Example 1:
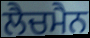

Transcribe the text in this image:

ਲੈਚਮੈਨ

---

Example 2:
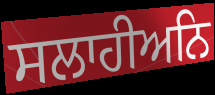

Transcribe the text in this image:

ਸਲਾਹੀਅਨਿ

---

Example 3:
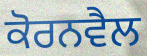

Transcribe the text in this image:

ਕੋਰਨਵੈਲ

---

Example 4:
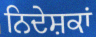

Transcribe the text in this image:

ਨਿਦੇਸ਼ਕਾਂ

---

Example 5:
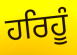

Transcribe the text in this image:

ਹਰਿਹੂੰ